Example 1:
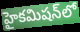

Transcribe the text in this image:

హైకమిషన్‌లో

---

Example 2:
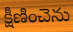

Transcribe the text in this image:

క్షీణించెను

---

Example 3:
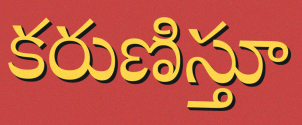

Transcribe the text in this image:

కరుణిస్తూ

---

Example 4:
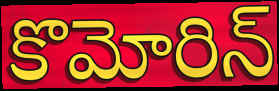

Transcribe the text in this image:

కొమోరిన్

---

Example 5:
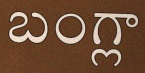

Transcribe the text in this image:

బంగ్లా